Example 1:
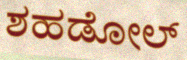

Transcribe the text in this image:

ಶಹಡೋಲ್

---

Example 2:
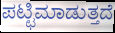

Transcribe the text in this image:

ಪಟ್ಟಿಮಾಡುತ್ತದೆ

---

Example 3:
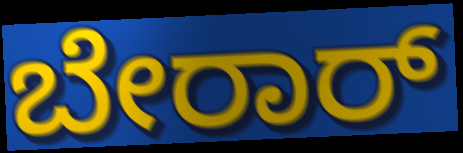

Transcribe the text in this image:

ಬೇರಾರ್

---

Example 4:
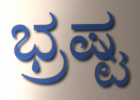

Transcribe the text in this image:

ಭ್ರಷ್ಟ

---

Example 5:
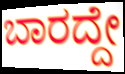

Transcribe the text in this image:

ಬಾರದ್ದೇ